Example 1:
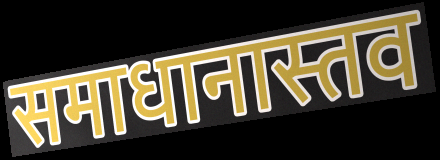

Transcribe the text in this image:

समाधानास्तव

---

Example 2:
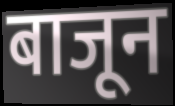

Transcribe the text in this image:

बाजून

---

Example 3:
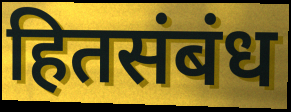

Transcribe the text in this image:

हितसंबंध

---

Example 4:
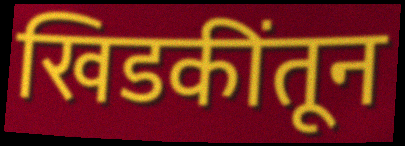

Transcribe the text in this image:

खिडकींतून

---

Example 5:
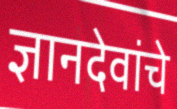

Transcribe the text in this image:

ज्ञानदेवांचे